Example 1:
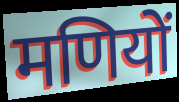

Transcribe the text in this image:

मणियों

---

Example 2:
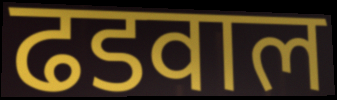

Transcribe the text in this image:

ढडवाल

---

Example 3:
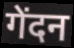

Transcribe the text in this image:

गेंदन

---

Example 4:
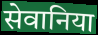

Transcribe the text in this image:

सेवानिया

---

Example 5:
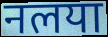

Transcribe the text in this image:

नलया